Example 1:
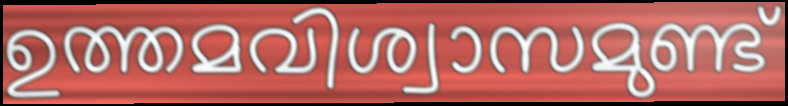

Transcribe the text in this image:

ഉത്തമവിശ്വാസമുണ്ട്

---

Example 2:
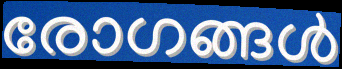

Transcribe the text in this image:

രോഗങ്ങൾ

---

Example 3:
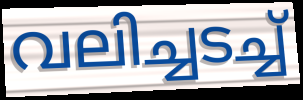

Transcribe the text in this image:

വലിച്ചടച്ച്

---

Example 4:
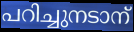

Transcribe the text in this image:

പറിച്ചുനടാന്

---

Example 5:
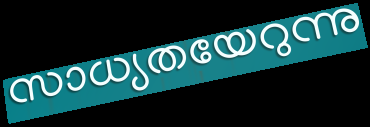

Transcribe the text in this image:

സാധ്യതയേറുന്നു